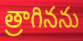
త్రాగినను